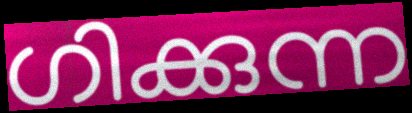
ഗിക്കുന്ന